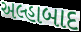
અલ્હાબાદ